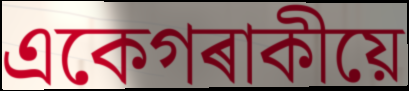
একেগৰাকীয়ে